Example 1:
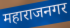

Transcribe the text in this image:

महाराजनगर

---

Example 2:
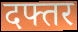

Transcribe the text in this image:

दफ्तर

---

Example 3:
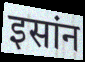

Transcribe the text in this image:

इसांन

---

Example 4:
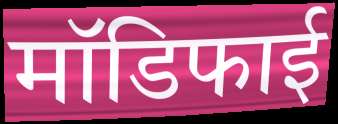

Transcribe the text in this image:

मॉडिफाई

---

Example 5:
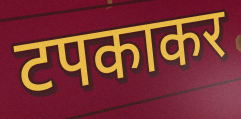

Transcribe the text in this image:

टपकाकर